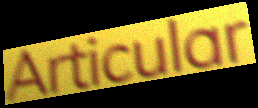
Articular